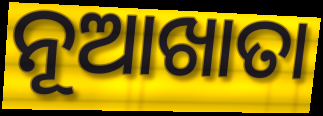
ନୂଆଖାତା